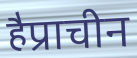
हैप्राचीन